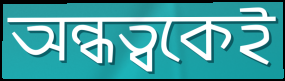
অন্ধত্বকেই